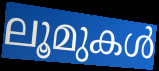
ലൂമുകൾ